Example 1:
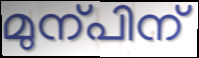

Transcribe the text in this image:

മുന്പിന്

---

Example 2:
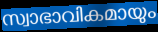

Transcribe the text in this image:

സ്വാഭാവികമായും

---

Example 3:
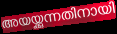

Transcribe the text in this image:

അയയ്ക്കുന്നതിനായി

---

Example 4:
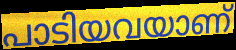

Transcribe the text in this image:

പാടിയവയാണ്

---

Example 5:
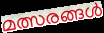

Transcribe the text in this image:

മത്സരങ്ങൾ